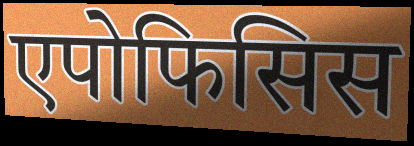
एपोफिसिस